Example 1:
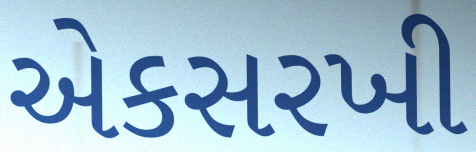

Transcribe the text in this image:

એકસરખી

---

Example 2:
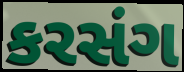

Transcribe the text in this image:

કરસંગ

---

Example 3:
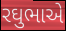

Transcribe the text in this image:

રઘુભાએ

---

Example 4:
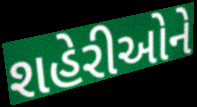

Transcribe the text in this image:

શહેરીઓને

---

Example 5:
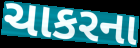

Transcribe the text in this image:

ચાકરના